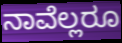
ನಾವೆಲ್ಲರೂ